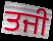
ਤਜੀ